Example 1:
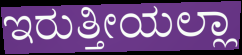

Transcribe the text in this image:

ಇರುತ್ತೀಯಲ್ಲಾ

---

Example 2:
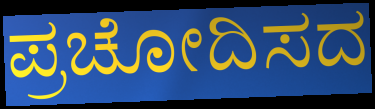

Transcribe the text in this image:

ಪ್ರಚೋದಿಸದ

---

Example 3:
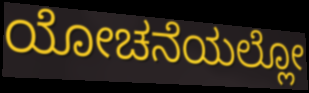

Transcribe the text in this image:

ಯೋಚನೆಯಲ್ಲೋ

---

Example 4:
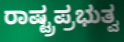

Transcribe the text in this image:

ರಾಷ್ಟ್ರಪ್ರಭುತ್ವ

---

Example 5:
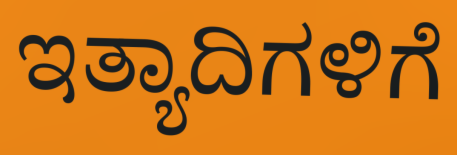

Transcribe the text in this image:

ಇತ್ಯಾದಿಗಳಿಗೆ